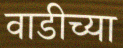
वाडीच्या